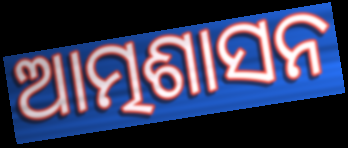
ଆତ୍ମଶାସନ